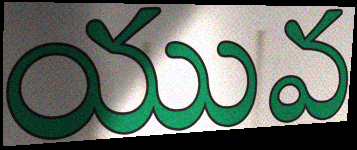
యువ